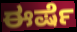
ಈರ್ಷೆ